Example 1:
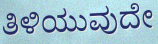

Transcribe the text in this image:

ತಿಳಿಯುವುದೇ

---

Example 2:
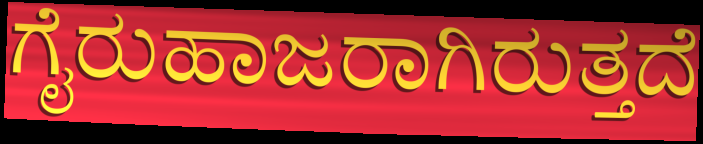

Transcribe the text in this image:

ಗೈರುಹಾಜರಾಗಿರುತ್ತದೆ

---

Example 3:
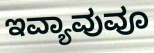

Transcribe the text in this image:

ಇವ್ಯಾವುವೂ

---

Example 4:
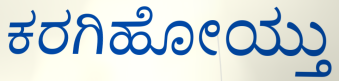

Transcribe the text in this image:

ಕರಗಿಹೋಯ್ತು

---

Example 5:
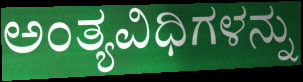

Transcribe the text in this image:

ಅಂತ್ಯವಿಧಿಗಳನ್ನು